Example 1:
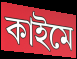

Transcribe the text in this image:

কাইমে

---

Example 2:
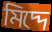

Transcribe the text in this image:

মিদ্দে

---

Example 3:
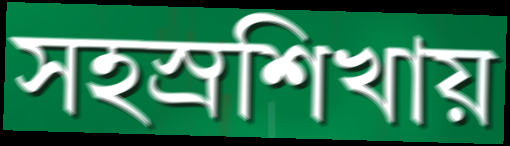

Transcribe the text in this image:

সহস্রশিখায়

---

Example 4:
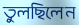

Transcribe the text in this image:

তুলছিলেন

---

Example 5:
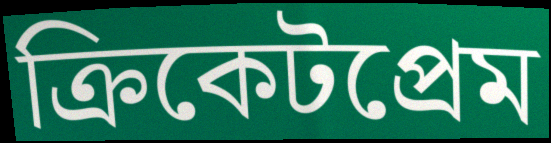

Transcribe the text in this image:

ক্রিকেটপ্রেম